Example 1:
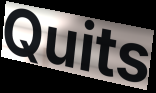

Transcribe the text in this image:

Quits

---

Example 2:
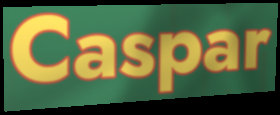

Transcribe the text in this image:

Caspar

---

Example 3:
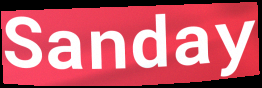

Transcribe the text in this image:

Sanday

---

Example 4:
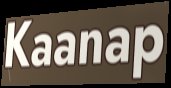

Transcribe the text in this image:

Kaanap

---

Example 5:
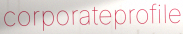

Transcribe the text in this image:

corporateprofile